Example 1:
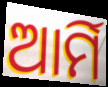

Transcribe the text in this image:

ଆର୍ମି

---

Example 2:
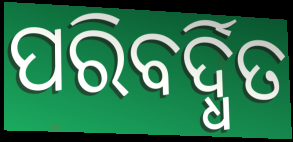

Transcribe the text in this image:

ପରିବର୍ଦ୍ଧିତ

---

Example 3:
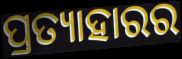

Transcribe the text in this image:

ପ୍ରତ୍ୟାହାରର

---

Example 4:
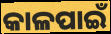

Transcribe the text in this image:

କାଳପାଇଁ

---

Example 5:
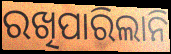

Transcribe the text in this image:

ରଖିପାରିଲାନି